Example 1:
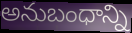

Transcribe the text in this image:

అనుబంధాన్ని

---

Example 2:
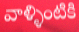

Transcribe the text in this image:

వాళ్ళింటికి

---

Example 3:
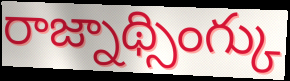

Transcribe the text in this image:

రాజ్నాథ్సింగ్కు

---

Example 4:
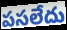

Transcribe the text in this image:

పసలేదు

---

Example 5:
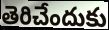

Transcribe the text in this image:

తెరిచేందుకు